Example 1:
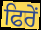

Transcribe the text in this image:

ਫਿਰੇਂ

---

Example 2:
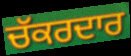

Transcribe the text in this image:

ਚੱਕਰਦਾਰ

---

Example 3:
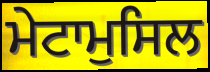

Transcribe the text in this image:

ਮੇਟਾਮੁਸਿਲ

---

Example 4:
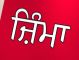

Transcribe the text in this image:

ਜ਼ਿੰਮਾ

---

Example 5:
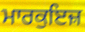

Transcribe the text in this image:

ਮਾਰਕੁਇਜ਼